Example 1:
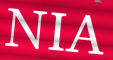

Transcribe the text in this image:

NIA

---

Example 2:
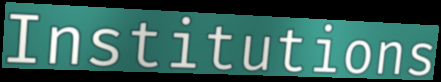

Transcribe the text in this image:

Institutions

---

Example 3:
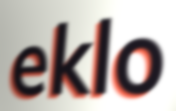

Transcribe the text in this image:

eklo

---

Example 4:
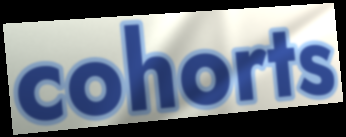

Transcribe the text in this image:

cohorts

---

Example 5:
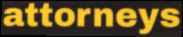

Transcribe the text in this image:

attorneys